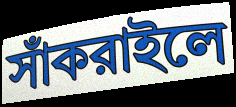
সাঁকরাইলে